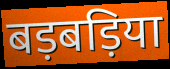
बड़बड़िया